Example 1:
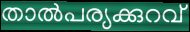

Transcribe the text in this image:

താൽപര്യക്കുറവ്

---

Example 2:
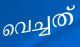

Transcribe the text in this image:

വെച്ചത്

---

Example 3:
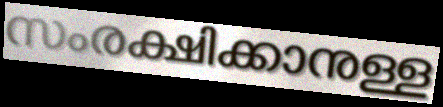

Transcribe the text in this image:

സംരക്ഷിക്കാനുള്ള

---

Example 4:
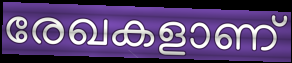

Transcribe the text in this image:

രേഖകളാണ്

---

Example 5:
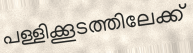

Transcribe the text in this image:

പള്ളിക്കൂടത്തിലേക്ക്